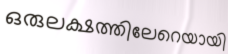
ഒരുലക്ഷത്തിലേറെയായി